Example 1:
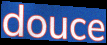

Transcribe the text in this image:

douce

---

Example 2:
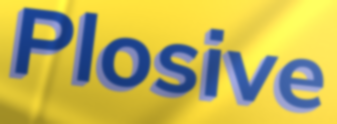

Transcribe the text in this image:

Plosive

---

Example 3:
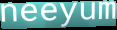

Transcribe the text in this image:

neeyum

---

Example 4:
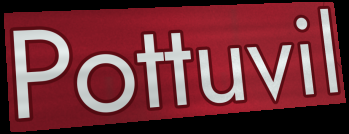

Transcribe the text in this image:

Pottuvil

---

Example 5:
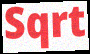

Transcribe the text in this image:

Sqrt